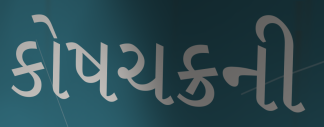
કોષચક્રની